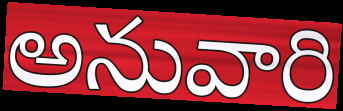
అనువారి